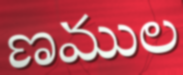
ణముల